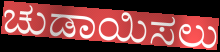
ಚುಡಾಯಿಸಲು